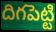
దిగపెట్టి